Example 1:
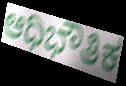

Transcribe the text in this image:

ಆಧಿಭೌತಿಕ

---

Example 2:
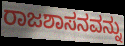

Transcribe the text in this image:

ರಾಜಶಾಸನವನ್ನು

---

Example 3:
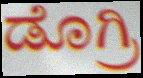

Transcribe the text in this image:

ಡೊಗ್ರಿ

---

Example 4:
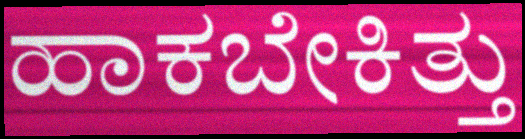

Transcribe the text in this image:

ಹಾಕಬೇಕಿತ್ತು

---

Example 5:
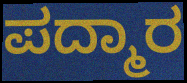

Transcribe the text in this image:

ಪದ್ಮಾರ